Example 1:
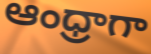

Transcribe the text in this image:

ఆంధ్రాగా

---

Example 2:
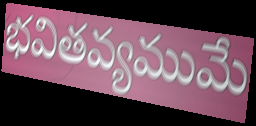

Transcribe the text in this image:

భవితవ్యముమే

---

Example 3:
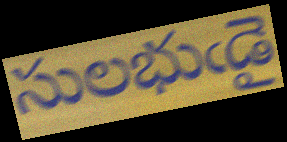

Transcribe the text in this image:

సులభుఁడై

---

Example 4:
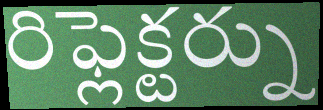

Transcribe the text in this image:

రిఫ్లెక్టర్ను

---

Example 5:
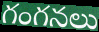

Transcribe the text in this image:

గంగనలు